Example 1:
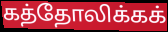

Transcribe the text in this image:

கத்தோலிக்கக்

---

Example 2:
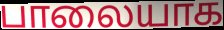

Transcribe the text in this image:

பாலையாக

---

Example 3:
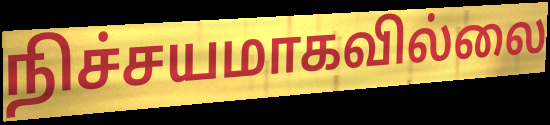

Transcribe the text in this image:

நிச்சயமாகவில்லை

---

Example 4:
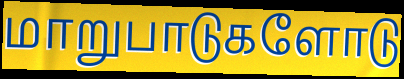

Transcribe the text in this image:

மாறுபாடுகளோடு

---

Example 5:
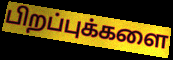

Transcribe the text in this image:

பிறப்புக்களை